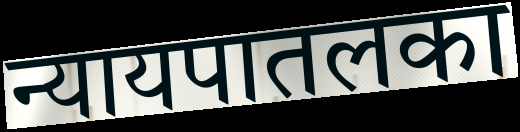
न्यायपातलका